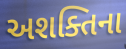
અશક્તિના